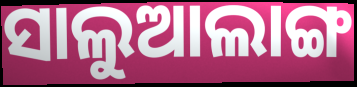
ସାଲୁଆଲାଙ୍ଗ